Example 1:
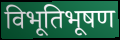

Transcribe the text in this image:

विभूतिभूषण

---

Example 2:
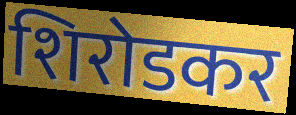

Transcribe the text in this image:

शिरोडकर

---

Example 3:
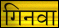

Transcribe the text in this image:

गिनवा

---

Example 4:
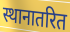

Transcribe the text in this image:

स्थानातरित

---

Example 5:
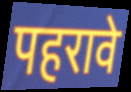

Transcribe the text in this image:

पहरावे